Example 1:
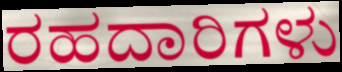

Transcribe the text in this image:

ರಹದಾರಿಗಳು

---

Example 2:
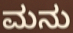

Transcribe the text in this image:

ಮನು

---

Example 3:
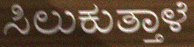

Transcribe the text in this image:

ಸಿಲುಕುತ್ತಾಳೆ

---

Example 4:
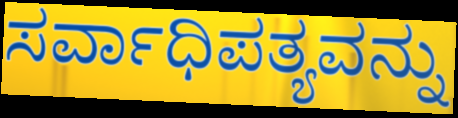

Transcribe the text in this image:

ಸರ್ವಾಧಿಪತ್ಯವನ್ನು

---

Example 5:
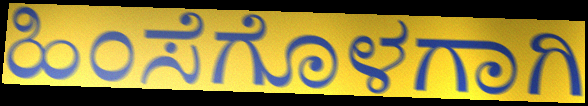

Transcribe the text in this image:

ಹಿಂಸೆಗೊಳಗಾಗಿ